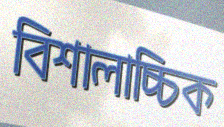
বিশালাচ্চিক